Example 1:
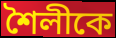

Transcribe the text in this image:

শৈলীকে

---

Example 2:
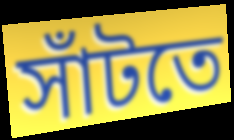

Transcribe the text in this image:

সাঁটতে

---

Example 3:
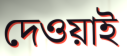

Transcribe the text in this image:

দেওয়াই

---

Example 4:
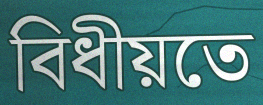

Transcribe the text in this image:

বিধীয়তে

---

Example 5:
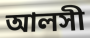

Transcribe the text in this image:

আলসী